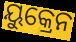
ୟୁକ୍ରେନ